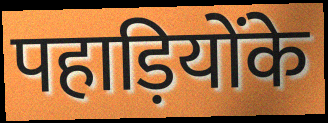
पहाड़ियोंके